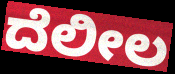
ದೆಲೀಲ